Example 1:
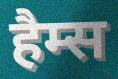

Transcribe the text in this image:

हैम्स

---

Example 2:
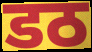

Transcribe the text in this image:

डठ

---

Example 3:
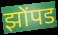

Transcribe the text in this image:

झोंपड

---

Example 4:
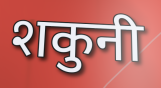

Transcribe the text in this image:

शकुनी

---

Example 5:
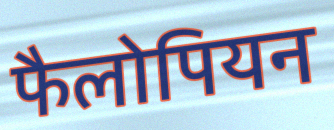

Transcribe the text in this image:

फैलोपियन